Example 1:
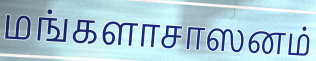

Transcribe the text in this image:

மங்களாசாஸனம்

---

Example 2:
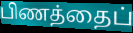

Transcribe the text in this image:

பிணத்தைப்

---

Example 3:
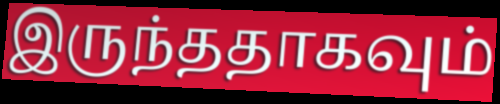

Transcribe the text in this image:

இருந்ததாகவும்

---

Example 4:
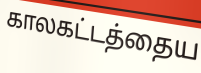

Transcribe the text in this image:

காலகட்டத்தைய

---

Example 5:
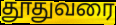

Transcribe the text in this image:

தூதுவரை